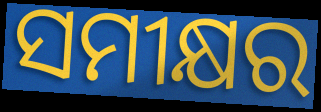
ସମୀକ୍ଷର